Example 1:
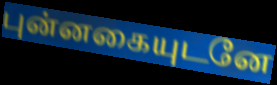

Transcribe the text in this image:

புன்னகையுடனே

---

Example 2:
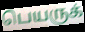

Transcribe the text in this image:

பெயருக்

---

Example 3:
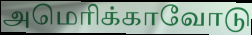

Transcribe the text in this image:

அமெரிக்காவோடு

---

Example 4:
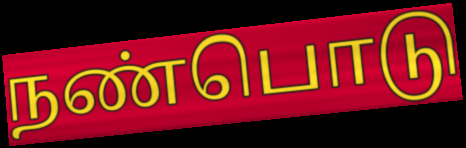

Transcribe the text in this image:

நண்பொடு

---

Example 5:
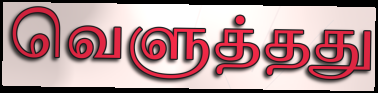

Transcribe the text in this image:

வெளுத்தது